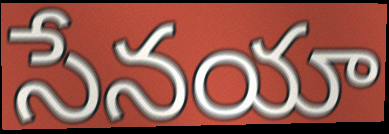
సేనయా